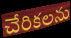
చేరికలను